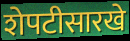
शेपटीसारखे